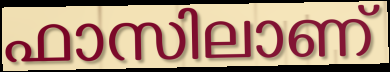
ഫാസിലാണ്